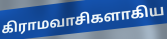
கிராமவாசிகளாகிய